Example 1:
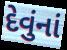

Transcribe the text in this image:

દેવુંનાં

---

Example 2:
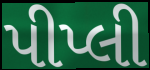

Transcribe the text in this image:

પીપ્લી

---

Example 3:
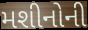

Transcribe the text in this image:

મશીનોની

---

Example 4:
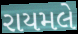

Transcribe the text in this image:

રાયમલે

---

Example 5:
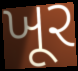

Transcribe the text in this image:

ખૂર